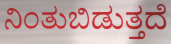
ನಿಂತುಬಿಡುತ್ತದೆ